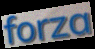
forza